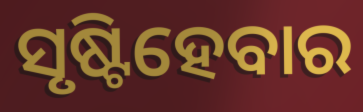
ସୃଷ୍ଟିହେବାର